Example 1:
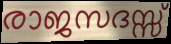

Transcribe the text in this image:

രാജസദസ്സ്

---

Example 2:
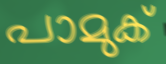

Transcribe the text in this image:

പാമുക്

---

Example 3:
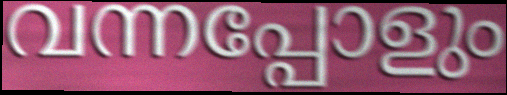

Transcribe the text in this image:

വന്നപ്പോളും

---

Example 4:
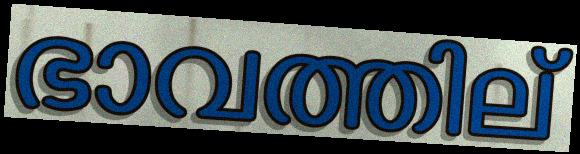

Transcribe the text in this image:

ഭാവത്തില്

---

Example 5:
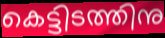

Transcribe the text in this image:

കെട്ടിടത്തിനു